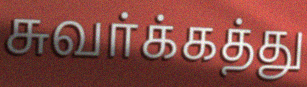
சுவர்க்கத்து